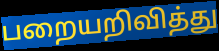
பறையறிவித்து